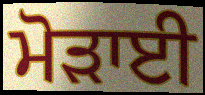
ਮੋੜਾਈ